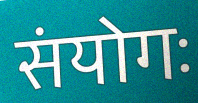
संयोगः